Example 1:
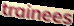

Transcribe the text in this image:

trainees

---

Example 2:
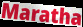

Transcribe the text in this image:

Maratha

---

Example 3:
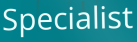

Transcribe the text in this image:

Specialist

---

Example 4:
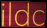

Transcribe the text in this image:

ildc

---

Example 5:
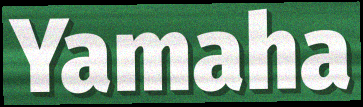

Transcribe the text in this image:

Yamaha